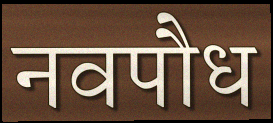
नवपौध